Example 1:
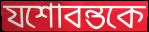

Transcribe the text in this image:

যশোবন্তকে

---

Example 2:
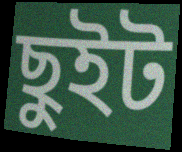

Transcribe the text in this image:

ছুইট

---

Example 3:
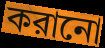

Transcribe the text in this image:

করানো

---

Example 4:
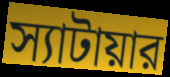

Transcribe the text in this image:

স্যাটায়ার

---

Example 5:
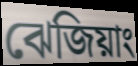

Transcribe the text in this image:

ঝেজিয়াং